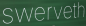
swerveth